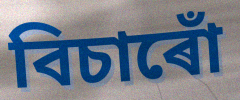
বিচাৰোঁ